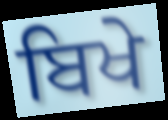
ਬਿਖੇ